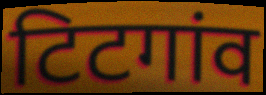
टिटगांव